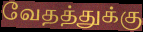
வேதத்துக்கு